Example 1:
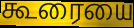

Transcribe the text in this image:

கூரையை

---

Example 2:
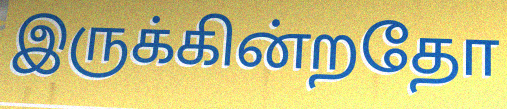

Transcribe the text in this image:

இருக்கின்றதோ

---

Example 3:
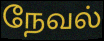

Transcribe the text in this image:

நேவல்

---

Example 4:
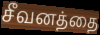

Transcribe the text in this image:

சீவனத்தை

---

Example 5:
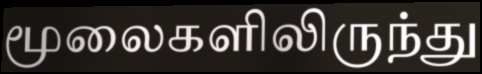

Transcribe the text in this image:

மூலைகளிலிருந்து